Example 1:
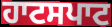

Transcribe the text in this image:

ਹਾਟਸਪਾਟ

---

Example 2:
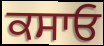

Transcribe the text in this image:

ਕਸਾਓ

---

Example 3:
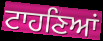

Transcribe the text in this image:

ਟਾਹਣਿਆਂ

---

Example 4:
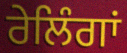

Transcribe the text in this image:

ਰੇਲਿੰਗਾਂ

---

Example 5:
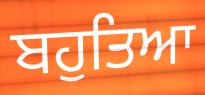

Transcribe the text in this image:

ਬਹੁਤਿਆ